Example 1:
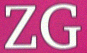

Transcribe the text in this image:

ZG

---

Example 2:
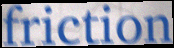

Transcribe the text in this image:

friction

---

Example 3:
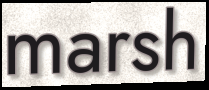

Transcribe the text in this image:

marsh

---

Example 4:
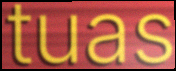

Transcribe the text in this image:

tuas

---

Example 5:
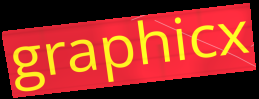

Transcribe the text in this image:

graphicx